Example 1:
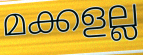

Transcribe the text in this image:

മക്കളല്ല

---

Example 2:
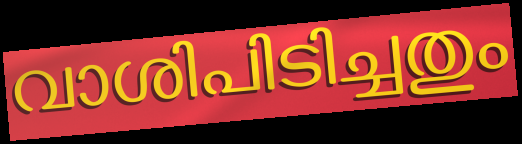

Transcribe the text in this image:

വാശിപിടിച്ചതും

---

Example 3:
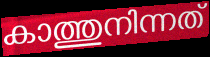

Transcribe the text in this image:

കാത്തുനിന്നത്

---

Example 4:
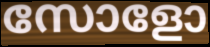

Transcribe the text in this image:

സോളോ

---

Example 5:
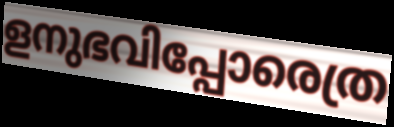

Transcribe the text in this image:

ളനുഭവിപ്പോരെത്ര